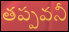
తప్పవనీ